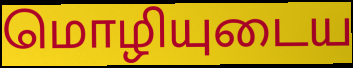
மொழியுடைய